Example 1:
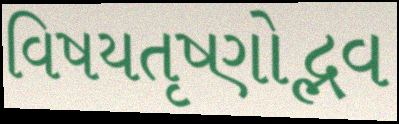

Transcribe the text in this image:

વિષયતૃષ્ણોદ્ભવ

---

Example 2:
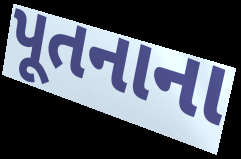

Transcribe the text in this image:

પૂતનાના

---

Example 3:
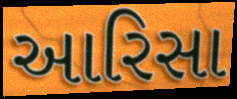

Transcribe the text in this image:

આરિસા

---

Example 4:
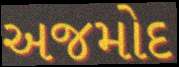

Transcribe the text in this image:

અજમોદ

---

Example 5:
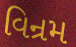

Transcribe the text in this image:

વિન્રમ